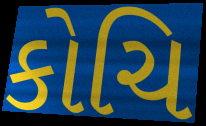
કોચિ